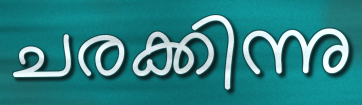
ചരക്കിന്നു